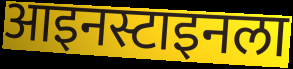
आइनस्टाइनला